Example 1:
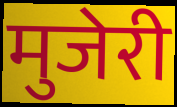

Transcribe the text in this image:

मुजेरी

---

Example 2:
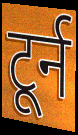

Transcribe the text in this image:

टूर्न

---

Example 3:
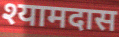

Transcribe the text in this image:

श्यामदास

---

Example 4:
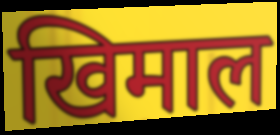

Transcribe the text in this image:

खिमाल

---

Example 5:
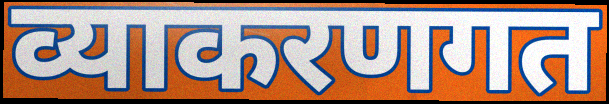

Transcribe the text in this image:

व्याकरणगत